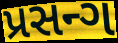
પ્રસન્ગ